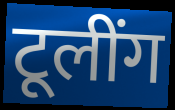
टूलींग